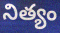
నిత్యం